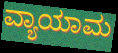
ವ್ಯಾಯಾಮ